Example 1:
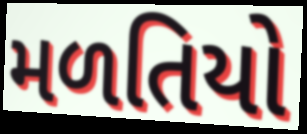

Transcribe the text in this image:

મળતિયો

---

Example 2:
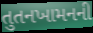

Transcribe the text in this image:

તુતનખામનની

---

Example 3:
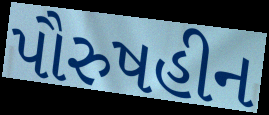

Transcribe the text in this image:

પૌરુષહીન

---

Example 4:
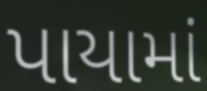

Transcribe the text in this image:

પાયામાં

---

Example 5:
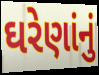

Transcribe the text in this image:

ઘરેણાંનું